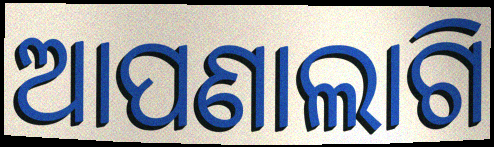
ଆପଣାଲାଗି